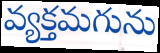
వ్యక్తమగును